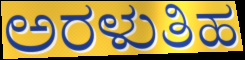
ಅರಳುತಿಹ